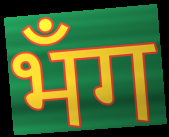
भँग